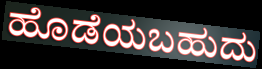
ಹೊಡೆಯಬಹುದು